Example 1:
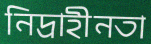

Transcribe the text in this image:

নিদ্রাহীনতা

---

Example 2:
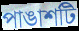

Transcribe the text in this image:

পাঙাশটি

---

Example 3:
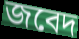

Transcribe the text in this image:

জবেদ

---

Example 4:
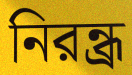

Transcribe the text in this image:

নিরন্ধ্র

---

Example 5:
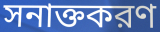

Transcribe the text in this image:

সনাক্তকরণ